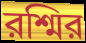
রশ্মির